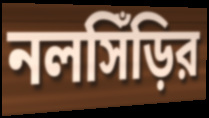
নলসিঁড়ির